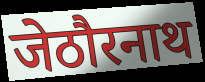
जेठौरनाथ